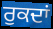
ਰੁਕਦਾਂ